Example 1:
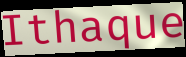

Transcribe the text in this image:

Ithaque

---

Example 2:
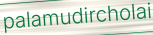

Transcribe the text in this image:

palamudircholai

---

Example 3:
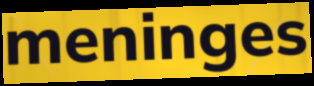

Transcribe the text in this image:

meninges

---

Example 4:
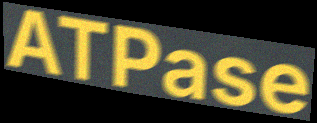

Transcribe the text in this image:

ATPase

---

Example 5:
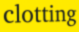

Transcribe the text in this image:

clotting